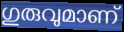
ഗുരുവുമാണ്